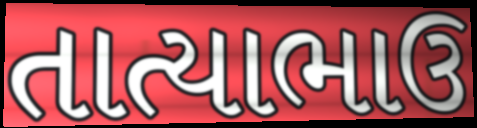
તાત્યાભાઉ